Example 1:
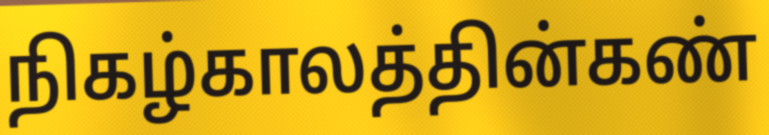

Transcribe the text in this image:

நிகழ்காலத்தின்கண்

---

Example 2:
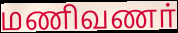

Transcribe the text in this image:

மணிவணர்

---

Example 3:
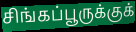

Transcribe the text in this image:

சிங்கப்பூருக்குக்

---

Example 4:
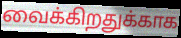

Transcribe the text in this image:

வைக்கிறதுக்காக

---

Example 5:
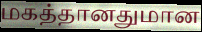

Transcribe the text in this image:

மகத்தானதுமான